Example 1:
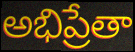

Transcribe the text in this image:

అభిప్రేతా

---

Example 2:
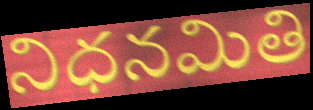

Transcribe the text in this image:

నిధనమితి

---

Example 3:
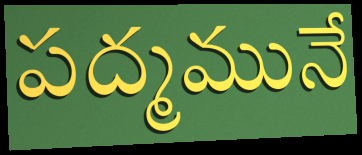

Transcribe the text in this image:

పద్మమునే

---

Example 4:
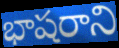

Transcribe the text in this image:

భాషరాని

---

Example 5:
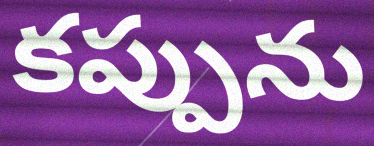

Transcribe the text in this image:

కప్పును